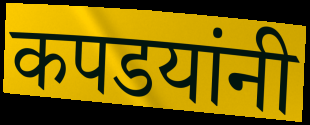
कपडयांनी